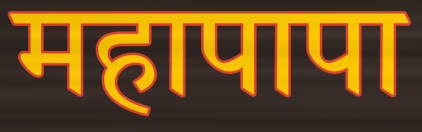
महापापा